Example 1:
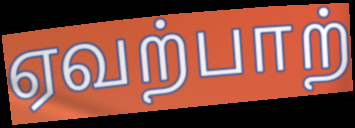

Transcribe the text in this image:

ஏவற்பாற்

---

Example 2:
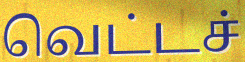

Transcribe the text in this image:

வெட்டச்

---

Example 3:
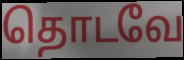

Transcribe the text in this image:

தொடவே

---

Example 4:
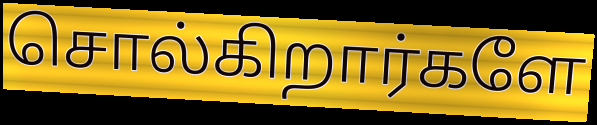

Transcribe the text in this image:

சொல்கிறார்களே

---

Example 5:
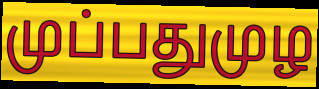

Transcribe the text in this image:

முப்பதுமுழ